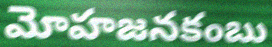
మోహజనకంబు